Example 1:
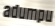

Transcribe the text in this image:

adumpu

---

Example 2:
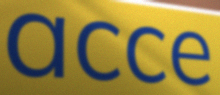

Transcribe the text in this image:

acce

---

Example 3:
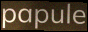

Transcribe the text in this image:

papule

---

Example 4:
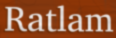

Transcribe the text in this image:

Ratlam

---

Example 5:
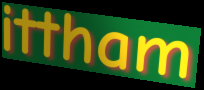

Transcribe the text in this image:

ittham